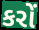
કરોં